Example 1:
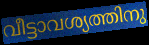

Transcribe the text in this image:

വീട്ടാവശ്യത്തിനു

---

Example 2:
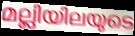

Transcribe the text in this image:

മല്ലിയിലയുടെ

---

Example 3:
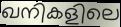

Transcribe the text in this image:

ഖനികളിലെ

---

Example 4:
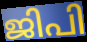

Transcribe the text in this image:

ജിപി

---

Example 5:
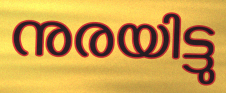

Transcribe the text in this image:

നുരയിട്ടു